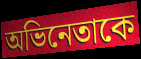
অভিনেতাকে